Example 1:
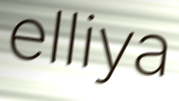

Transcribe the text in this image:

elliya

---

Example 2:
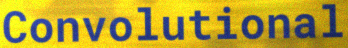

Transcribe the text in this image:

Convolutional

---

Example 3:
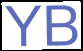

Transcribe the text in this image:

YB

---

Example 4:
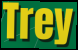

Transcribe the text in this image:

Trey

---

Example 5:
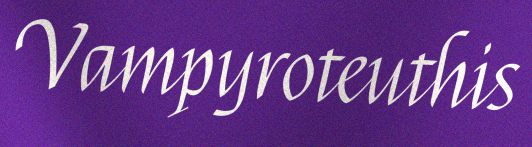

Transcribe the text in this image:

Vampyroteuthis